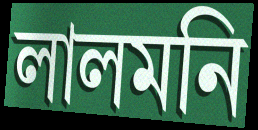
লালমনি